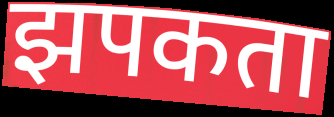
झपकता